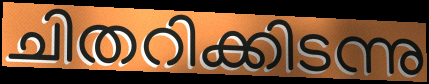
ചിതറിക്കിടന്നു